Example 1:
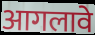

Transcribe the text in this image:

आगलावे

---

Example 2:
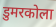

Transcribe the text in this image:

डुमरकोला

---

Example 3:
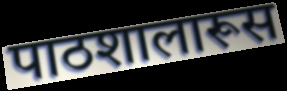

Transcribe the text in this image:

पाठशालारूस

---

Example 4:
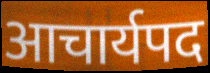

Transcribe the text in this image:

आचार्यपद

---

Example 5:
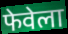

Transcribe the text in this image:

फेवेला